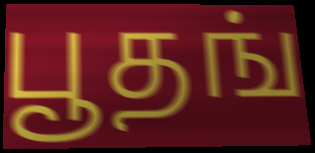
பூதங்